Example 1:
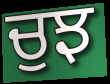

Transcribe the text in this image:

ਚੁਝ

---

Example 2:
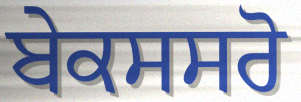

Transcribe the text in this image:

ਬੇਕਸਸਰੋ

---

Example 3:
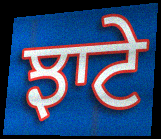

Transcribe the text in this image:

ਝਾਟੇ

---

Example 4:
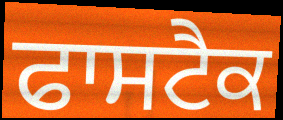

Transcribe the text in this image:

ਫਾਸਟੈਕ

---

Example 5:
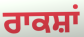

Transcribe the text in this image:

ਰਾਕਸ਼ਾਂ